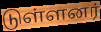
டுள்ளனர்